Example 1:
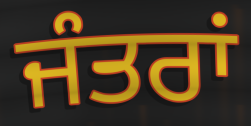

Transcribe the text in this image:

ਜੰਤਰਾਂ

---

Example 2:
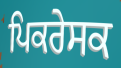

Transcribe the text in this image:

ਪਿਕਰੇਸਕ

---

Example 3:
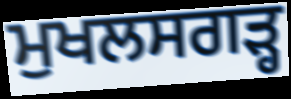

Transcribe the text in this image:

ਮੁਖਲਸਗੜ੍ਹ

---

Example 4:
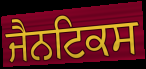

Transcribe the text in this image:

ਜੈਨਟਿਕਸ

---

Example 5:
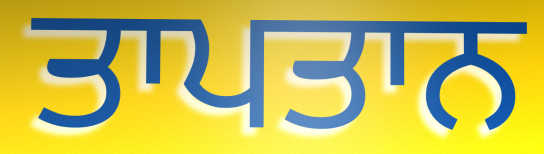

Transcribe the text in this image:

ਤਾਪਤਾਨ